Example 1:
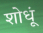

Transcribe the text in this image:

शोधूं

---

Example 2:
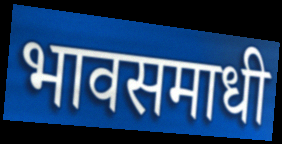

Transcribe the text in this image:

भावसमाधी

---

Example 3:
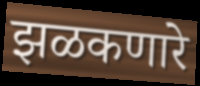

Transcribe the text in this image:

झळकणारे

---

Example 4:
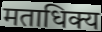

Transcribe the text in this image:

मताधिक्‍य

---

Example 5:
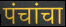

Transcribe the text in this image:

पंचांचा